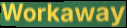
Workaway